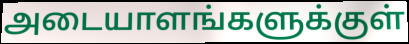
அடையாளங்களுக்குள்